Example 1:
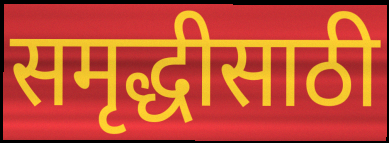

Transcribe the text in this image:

समृद्धीसाठी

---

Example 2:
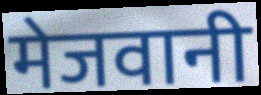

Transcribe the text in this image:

मेजवानी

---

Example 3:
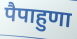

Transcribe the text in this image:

पैपाहुणा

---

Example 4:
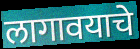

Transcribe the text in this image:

लागावयाचे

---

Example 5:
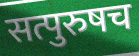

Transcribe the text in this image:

सत्पुरुषच